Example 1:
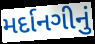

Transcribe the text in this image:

મર્દાનગીનું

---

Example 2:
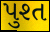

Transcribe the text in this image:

પુશ્ત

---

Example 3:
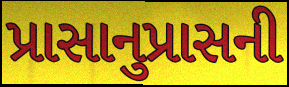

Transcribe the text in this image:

પ્રાસાનુપ્રાસની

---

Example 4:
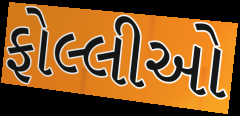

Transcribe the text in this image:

ફોલ્લીઓ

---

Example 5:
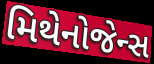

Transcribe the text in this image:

મિથેનોજેન્સ